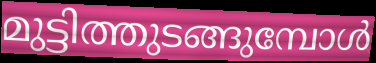
മുട്ടിത്തുടങ്ങുമ്പോൾ